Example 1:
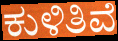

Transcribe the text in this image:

ಕುಳಿತಿವೆ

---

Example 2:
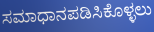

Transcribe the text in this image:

ಸಮಾಧಾನಪಡಿಸಿಕೊಳ್ಳಲು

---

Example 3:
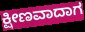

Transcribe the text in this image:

ಕ್ಷೀಣವಾದಾಗ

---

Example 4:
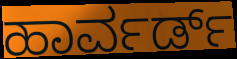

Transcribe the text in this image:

ಹಾರ್ವರ್ಡ್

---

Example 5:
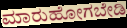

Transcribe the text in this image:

ಮಾರುಹೋಗಬೇಡಿ